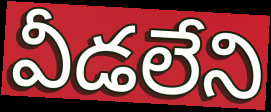
వీడలేని